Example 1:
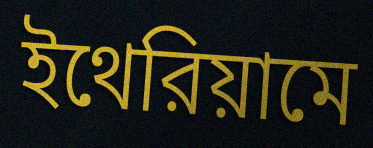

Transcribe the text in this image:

ইথেরিয়ামে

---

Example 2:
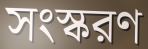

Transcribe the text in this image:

সংস্করণ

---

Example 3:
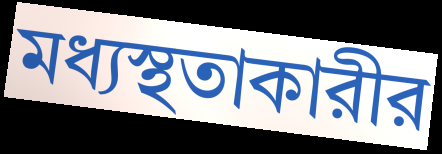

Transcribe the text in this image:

মধ্যস্থতাকারীর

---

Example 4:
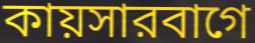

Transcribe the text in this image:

কায়সারবাগে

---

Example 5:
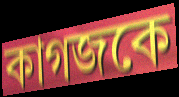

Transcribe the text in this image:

কাগজকে